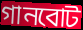
গানবোট